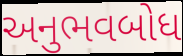
અનુભવબોધ